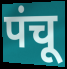
पंचू